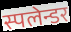
स्पलेन्डर